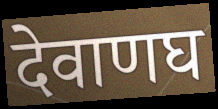
देवाणघ